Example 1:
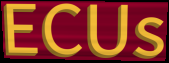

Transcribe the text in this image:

ECUs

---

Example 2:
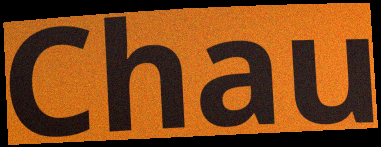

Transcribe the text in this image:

Chau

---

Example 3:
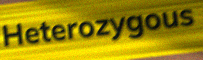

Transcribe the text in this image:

Heterozygous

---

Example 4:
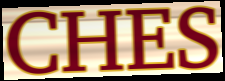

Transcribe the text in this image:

CHES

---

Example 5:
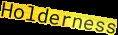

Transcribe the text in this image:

Holderness